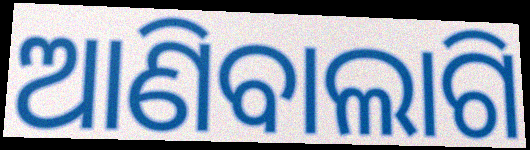
ଆଣିବାଲାଗି